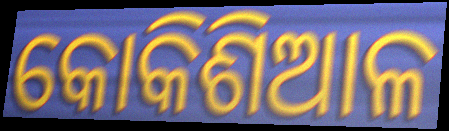
କୋକିଶିଆଳ